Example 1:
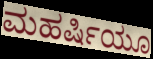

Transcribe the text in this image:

ಮಹರ್ಷಿಯೂ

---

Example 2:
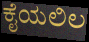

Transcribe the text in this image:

ಕೈಯಲಿಲ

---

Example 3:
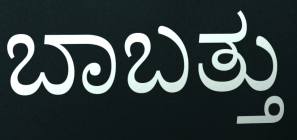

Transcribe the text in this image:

ಬಾಬತ್ತು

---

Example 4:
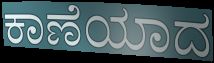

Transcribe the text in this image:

ಕಾಣೆಯಾದ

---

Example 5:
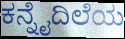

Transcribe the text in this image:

ಕನ್ನೈದಿಲೆಯ